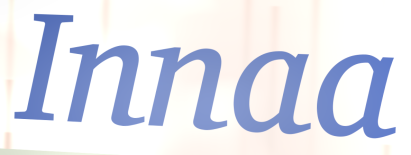
Innaa